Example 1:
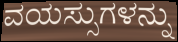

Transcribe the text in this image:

ವಯಸ್ಸುಗಳನ್ನು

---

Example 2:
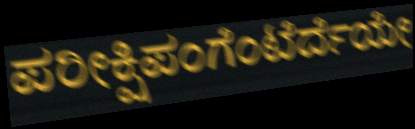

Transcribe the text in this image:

ಪರೀಕ್ಷಿಪಂಗೆಂಟೆರ್ದೆಯೇ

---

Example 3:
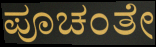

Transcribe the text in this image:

ಪೂಚಂತೇ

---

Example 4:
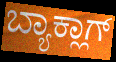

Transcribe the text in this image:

ಬ್ಯಾಕ್ಲಾಗ್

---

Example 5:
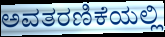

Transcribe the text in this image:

ಅವತರಣಿಕೆಯಲ್ಲಿ